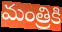
మంత్రికి